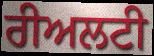
ਰੀਅਲਟੀ